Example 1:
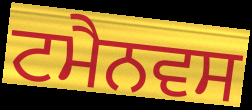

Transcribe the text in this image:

ਟਮੈਨਵਸ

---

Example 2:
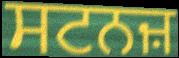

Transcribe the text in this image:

ਸਟਨਜ਼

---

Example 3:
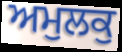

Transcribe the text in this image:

ਅਮੁਲਕੁ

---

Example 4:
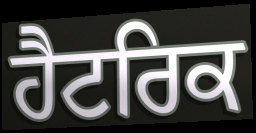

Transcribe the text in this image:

ਹੈਟਰਿਕ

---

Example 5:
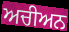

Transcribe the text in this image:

ਅਚੀਅਨ